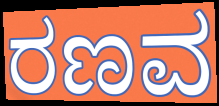
ರಣವ